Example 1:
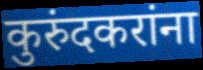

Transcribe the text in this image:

कुरुंदकरांना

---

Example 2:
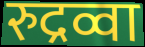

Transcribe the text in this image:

रुद्रव्वा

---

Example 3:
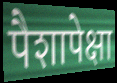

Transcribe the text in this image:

पैशापेक्षा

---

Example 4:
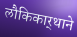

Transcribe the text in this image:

लौकिकार्थाने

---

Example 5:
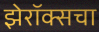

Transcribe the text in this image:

झेरॉक्सचा